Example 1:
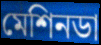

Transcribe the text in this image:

মেশিনডা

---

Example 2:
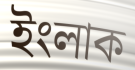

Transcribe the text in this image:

ইংলাক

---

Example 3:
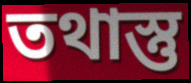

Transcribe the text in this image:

তথাস্তু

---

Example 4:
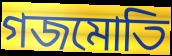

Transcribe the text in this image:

গজমোতি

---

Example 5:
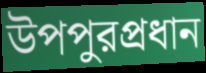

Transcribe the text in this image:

উপপুরপ্রধান